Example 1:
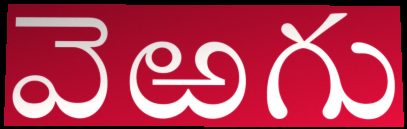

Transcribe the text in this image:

వెఱగు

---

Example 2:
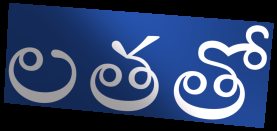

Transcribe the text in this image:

లతతో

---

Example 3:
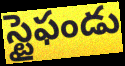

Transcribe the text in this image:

స్టైఫండు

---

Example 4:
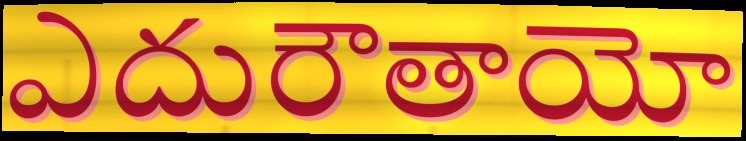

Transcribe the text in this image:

ఎదురౌతాయో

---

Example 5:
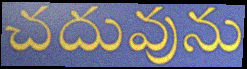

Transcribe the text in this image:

చదువును